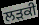
ਲੜਕੀ